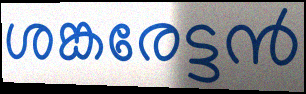
ശങ്കരേട്ടൻ